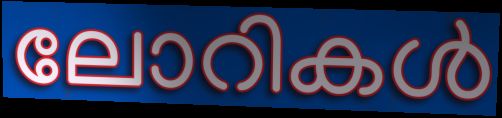
ലോറികൾ